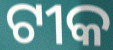
ଟୀକ